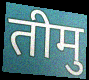
तीमु